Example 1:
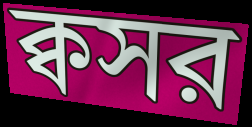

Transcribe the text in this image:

ক্বসর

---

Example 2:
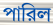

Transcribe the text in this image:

পারিল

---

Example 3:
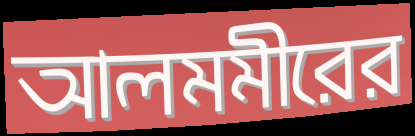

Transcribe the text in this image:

আলমমীরের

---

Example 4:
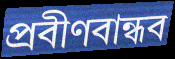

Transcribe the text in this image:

প্রবীণবান্ধব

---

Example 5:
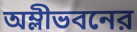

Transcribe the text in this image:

অম্লীভবনের